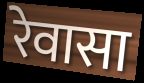
रेवासा